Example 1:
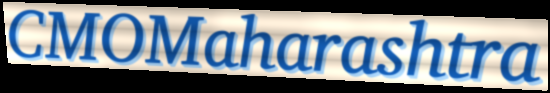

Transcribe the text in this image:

CMOMaharashtra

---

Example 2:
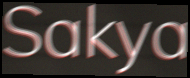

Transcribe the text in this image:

Sakya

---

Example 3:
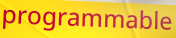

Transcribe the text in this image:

programmable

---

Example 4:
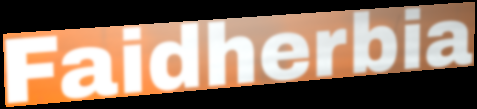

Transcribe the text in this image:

Faidherbia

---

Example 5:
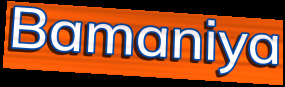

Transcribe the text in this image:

Bamaniya